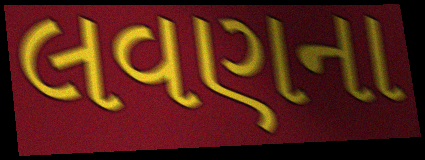
લવણના